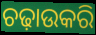
ଚଢ଼ାଉକରି